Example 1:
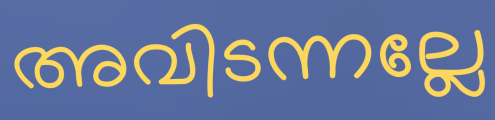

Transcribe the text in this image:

അവിടന്നല്ലേ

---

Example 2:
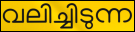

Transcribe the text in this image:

വലിച്ചിടുന്ന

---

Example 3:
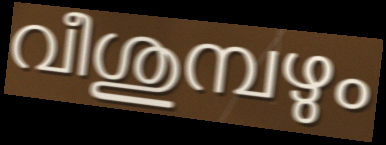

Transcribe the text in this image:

വീശുമ്പഴും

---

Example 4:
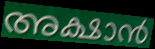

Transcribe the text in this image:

അക്ഷാൻ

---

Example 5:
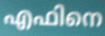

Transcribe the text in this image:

എഫിനെ